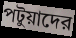
পটুয়াদের